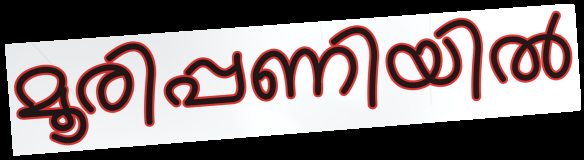
മൂരിപ്പണിയിൽ